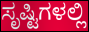
ಸೃಷ್ಟಿಗಳಲ್ಲಿ